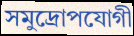
সমুদ্রোপযোগী